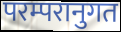
परम्परानुगत